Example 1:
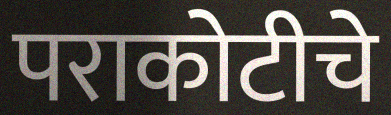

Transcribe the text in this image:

पराकोटीचे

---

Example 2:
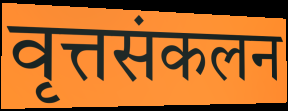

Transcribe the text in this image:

वृत्तसंकलन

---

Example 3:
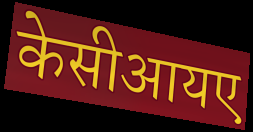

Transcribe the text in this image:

केसीआयए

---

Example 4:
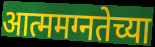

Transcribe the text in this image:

आत्ममग्नतेच्या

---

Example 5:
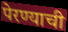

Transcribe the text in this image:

पेरण्याची